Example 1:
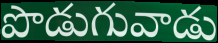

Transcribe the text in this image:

పొడుగువాడు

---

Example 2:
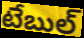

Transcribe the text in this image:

టేబుల్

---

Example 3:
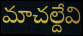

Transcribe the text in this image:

మాచల్దేవి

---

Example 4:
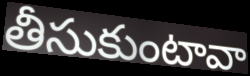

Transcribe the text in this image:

తీసుకుంటావా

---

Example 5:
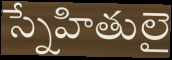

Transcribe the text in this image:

స్నేహితులై